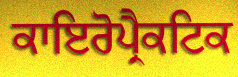
ਕਾਇਰੋਪ੍ਰੈਕਟਿਕ